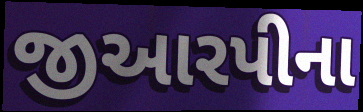
જીઆરપીના